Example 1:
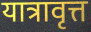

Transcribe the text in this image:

यात्रावृत्त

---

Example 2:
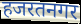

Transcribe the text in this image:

हजरतनगर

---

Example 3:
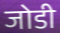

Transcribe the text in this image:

जोडी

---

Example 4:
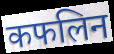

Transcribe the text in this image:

कफलिन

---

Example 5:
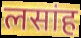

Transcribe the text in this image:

लसांह